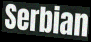
Serbian